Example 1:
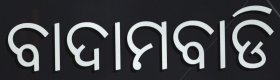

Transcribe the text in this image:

ବାଦାମବାଡି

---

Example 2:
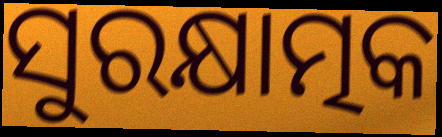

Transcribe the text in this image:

ସୁରକ୍ଷାତ୍ମକ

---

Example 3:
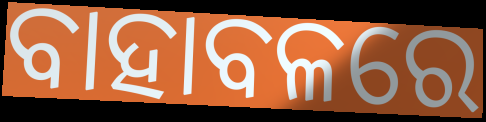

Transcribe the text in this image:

ବାହାବଳରେ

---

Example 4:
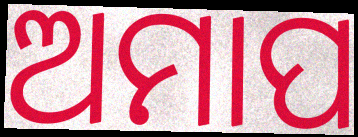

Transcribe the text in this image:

ଅମାପ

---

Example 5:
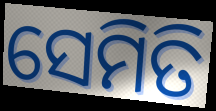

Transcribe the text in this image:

ସେମିତି